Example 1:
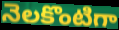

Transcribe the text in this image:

నెలకొంటిగా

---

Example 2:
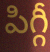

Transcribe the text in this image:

పిగ్గీ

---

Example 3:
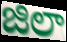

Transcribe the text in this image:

జిలా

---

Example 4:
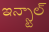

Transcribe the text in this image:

ఇన్స్టాల్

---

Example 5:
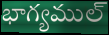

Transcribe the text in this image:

భాగ్యముల్